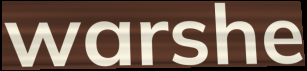
warshe